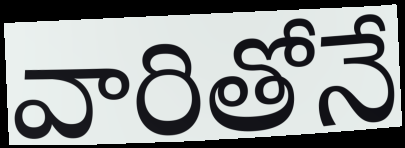
వారితోనే